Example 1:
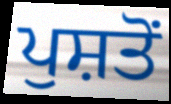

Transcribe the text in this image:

ਪੁਸ਼ਤੋਂ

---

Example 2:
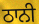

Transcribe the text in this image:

ਠਾਨੀ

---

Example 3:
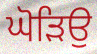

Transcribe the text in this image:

ਘੋੜਿਉ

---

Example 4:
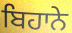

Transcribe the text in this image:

ਬਿਹਾਨੇ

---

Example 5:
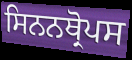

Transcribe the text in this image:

ਸਿਨਨਥ੍ਰੋਪਸ